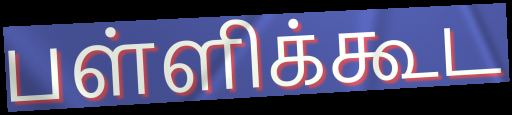
பள்ளிக்கூட